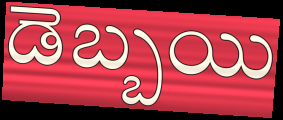
డెబ్బయి